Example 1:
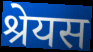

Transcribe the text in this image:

श्रेयस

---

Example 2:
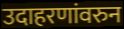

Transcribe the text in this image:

उदाहरणांवरुन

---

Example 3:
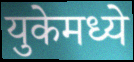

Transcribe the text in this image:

युकेमध्ये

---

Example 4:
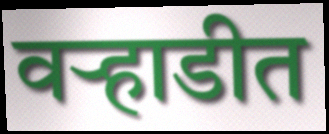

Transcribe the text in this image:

वऱ्हाडीत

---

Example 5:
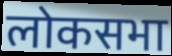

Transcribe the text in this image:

लोकसभा